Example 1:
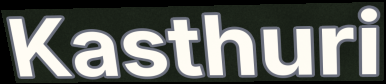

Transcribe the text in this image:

Kasthuri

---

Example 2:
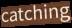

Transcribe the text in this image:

catching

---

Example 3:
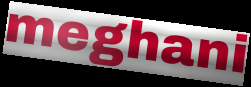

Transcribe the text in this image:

meghani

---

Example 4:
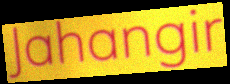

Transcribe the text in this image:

Jahangir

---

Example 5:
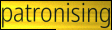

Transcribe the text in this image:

patronising